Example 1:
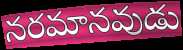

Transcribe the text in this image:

నరమానవుడు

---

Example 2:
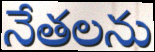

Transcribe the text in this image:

నేతలను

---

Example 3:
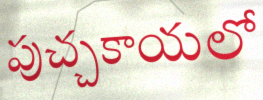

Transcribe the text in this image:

పుచ్చకాయలో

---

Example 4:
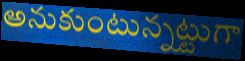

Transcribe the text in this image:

అనుకుంటున్నట్టుగా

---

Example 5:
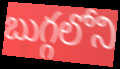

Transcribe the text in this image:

బుగ్గలోని